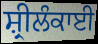
ਸ਼੍ਰੀਲੰਕਾਈ